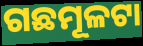
ଗଛମୂଳଟା